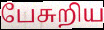
பேசுறிய